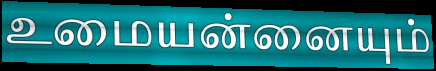
உமையன்னையும்